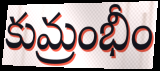
కుమ్రంభీం